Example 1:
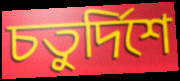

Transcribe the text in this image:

চতুৰ্দিশে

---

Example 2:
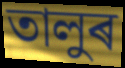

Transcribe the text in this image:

তালুৰ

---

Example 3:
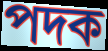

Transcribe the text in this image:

পদক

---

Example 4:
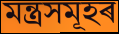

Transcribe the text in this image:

মন্ত্ৰসমূহৰ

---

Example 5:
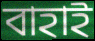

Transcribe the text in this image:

বাহাই